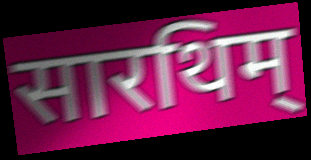
सारथिम्